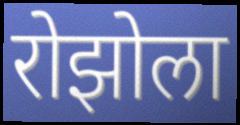
रोझोला